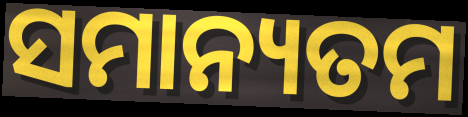
ସମାନ୍ୟତମ